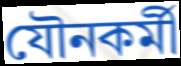
যৌনকর্মী